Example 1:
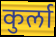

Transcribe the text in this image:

कुर्ला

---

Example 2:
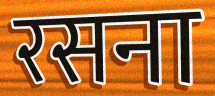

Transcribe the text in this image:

रसना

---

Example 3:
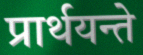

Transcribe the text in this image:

प्रार्थयन्ते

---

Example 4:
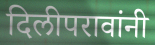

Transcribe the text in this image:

दिलीपरावांनी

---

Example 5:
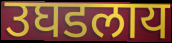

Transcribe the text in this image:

उघडलाय